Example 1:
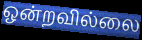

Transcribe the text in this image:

ஒன்றவில்லை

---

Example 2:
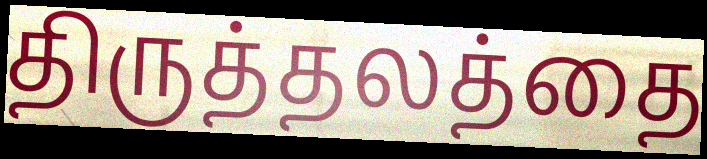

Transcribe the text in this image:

திருத்தலத்தை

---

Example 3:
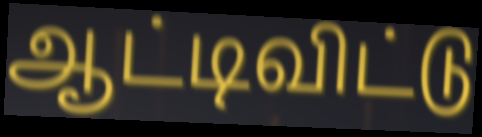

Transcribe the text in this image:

ஆட்டிவிட்டு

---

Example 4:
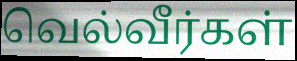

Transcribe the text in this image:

வெல்வீர்கள்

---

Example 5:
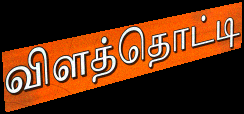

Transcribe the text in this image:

விளத்தொட்டி